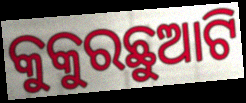
କୁକୁରଛୁଆଟି